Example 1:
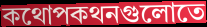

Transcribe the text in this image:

কথোপকথনগুলোতে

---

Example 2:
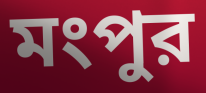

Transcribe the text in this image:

মংপুর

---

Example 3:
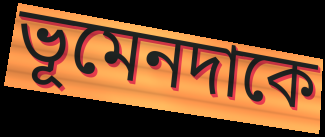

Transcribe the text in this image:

ভূমেনদাকে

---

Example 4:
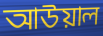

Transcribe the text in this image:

আউয়াল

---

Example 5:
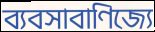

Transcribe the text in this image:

ব্যবসাবাণিজ্যে